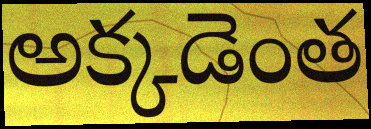
అక్కడెంత